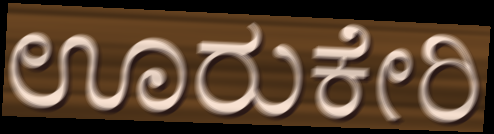
ಊರುಕೇರಿ